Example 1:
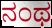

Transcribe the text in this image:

ನಂಥ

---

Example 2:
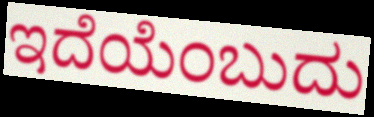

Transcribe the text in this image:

ಇದೆಯೆಂಬುದು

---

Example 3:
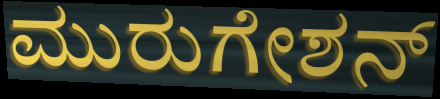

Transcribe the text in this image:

ಮುರುಗೇಶನ್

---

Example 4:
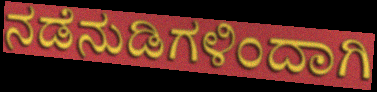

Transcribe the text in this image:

ನಡೆನುಡಿಗಳಿಂದಾಗಿ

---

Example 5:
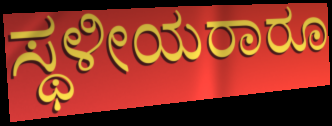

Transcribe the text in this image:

ಸ್ಥಳೀಯರಾರೂ